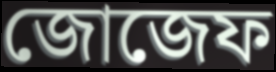
জোজেফ